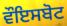
ਵੌਇਸਬੋਟ